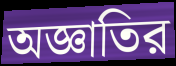
অজ্ঞাতির